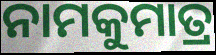
ନାମକୁମାତ୍ର